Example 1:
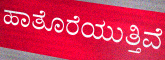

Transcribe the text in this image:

ಹಾತೊರೆಯುತ್ತಿವೆ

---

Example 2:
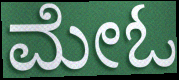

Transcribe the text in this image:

ಮೇಓ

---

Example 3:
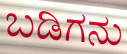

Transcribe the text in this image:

ಬಡಿಗನು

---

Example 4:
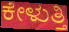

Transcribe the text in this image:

ಕೇಳುತ್ತಿ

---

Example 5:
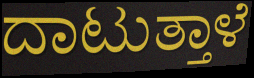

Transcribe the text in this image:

ದಾಟುತ್ತಾಳೆ